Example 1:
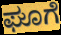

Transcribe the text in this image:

ಘೂಗೆ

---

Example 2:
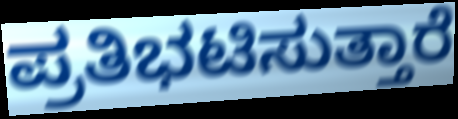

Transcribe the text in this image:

ಪ್ರತಿಭಟಿಸುತ್ತಾರೆ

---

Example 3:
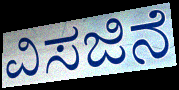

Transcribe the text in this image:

ವಿಸಜಿನೆ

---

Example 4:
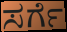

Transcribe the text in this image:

ಸರ್ಗೆ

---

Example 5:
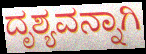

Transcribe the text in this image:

ದೃಶ್ಯವನ್ನಾಗಿ